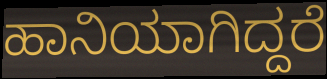
ಹಾನಿಯಾಗಿದ್ದರೆ